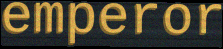
emperor